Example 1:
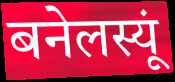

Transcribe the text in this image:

बनेलस्यूं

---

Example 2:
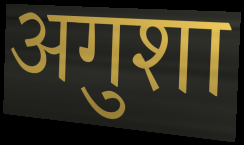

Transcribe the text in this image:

अगुशा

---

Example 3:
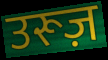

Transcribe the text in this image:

उरूज़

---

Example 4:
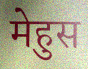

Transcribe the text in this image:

मेहुस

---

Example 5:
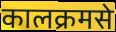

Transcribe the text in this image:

कालक्रमसे